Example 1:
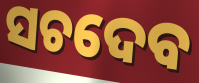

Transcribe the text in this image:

ସଚଦେବ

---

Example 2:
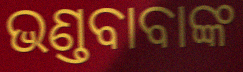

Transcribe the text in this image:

ଭଣ୍ଡବାବାଙ୍କ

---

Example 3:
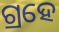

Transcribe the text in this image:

ଗ୍ରହେ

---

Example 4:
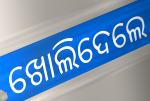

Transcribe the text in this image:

ଖୋଲିଦେଲେ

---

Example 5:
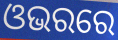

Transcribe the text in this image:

ଓଭରରେ